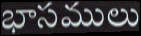
భాసములు